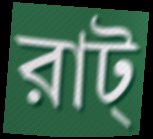
রাট্